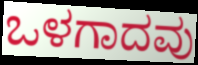
ಒಳಗಾದವು